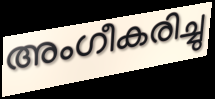
അംഗീകരിച്ചു